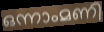
ഒന്നാംമണി